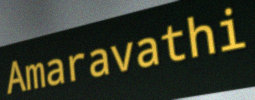
Amaravathi